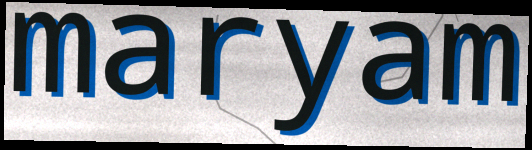
maryam